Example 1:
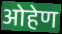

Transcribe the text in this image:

ओहेण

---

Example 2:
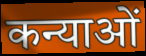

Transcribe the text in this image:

कन्‍याओं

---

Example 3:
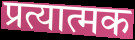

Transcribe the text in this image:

प्रत्यात्मक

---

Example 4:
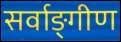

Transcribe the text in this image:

सर्वाङ्गीण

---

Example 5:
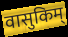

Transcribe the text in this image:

वासुकिम्